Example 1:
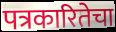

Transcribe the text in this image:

पत्रकारितेचा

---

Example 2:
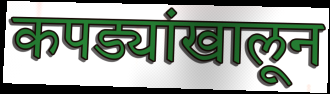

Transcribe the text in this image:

कपड्यांखालून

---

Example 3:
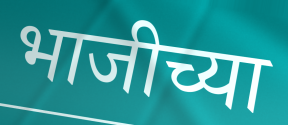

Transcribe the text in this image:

भाजीच्या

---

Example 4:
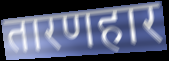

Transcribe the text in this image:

तारणहार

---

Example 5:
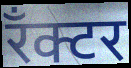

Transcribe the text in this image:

रँक्टर